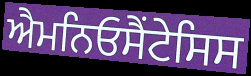
ਐਮਨਿਓਸੈਂਟੇਸਿਸ